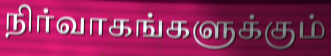
நிர்வாகங்களுக்கும்